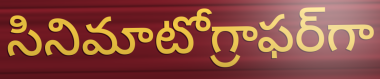
సినిమాటోగ్రాఫర్‌గా